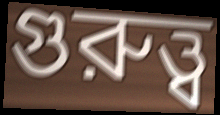
গুরুত্ত্ব